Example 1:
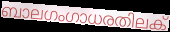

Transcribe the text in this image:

ബാലഗംഗാധരതിലക്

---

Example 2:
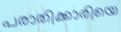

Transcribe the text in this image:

പരാതിക്കാരിയെ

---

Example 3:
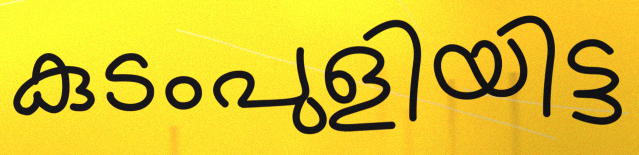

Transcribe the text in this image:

കുടംപുളിയിട്ട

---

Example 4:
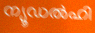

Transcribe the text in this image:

ന്യൂഡൽഹി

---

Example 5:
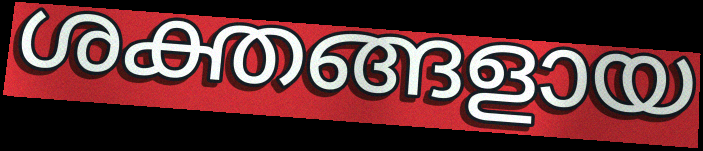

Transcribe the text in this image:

ശക്തങ്ങളായ